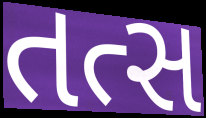
તત્સ